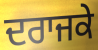
ਦਰਾਜਕੇ